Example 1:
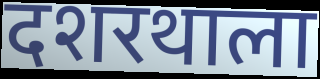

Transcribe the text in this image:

दशरथाला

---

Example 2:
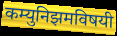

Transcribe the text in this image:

कम्युनिझमविषयी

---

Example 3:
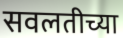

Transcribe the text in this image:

सवलतीच्या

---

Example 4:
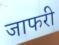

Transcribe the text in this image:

जाफरी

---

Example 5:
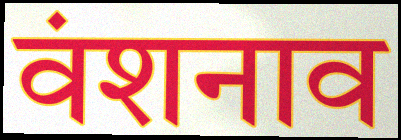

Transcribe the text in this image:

वंशनाव